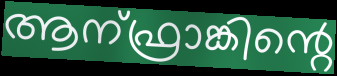
ആന്ഫ്രാങ്കിന്റെ